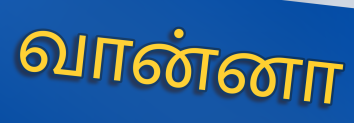
வான்னா